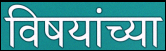
विषयांच्या